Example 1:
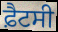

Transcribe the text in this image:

ਫ਼ੈਟਸੀ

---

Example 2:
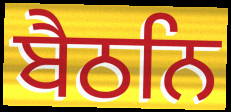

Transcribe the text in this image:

ਬੈਠਨਿ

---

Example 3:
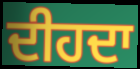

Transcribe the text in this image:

ਦੀਹਦਾ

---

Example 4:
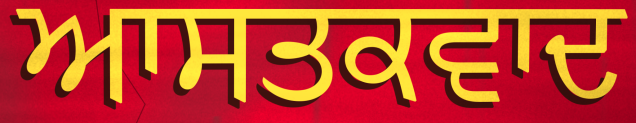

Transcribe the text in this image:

ਆਸਤਕਵਾਦ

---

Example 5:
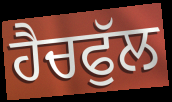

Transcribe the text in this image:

ਹੈਚਫੁੱਲ